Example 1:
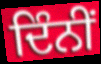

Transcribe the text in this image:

ਦਿੰਨੀਂ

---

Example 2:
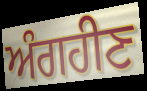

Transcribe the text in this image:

ਅੰਗਹੀਣ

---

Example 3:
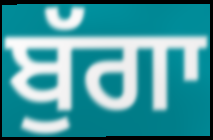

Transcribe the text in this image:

ਬੁੱਗਾ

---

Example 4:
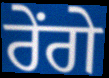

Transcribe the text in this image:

ਰੇਂਗੇ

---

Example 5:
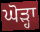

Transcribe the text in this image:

ਘੋੜ੍ਹਾ